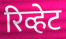
रिव्हेट